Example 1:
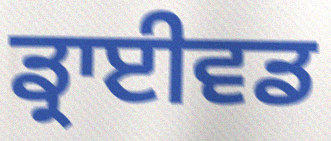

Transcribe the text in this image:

ਡ੍ਰਾਈਵਡ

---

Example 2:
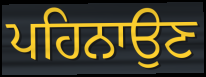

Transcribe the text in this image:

ਪਹਿਨਾਉਣ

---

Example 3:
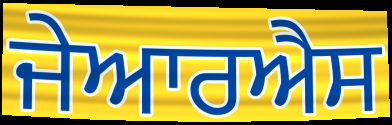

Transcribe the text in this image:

ਜੇਆਰਐਸ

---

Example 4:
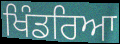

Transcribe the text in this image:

ਖਿੰਡਰਿਆ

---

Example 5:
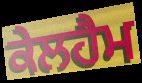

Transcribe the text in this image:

ਕੇਲਹੈਮ